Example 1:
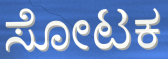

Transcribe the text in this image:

ಸೋಟಕ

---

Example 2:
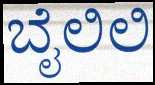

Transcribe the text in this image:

ಬೈಲಿಲಿ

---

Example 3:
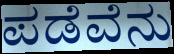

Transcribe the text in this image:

ಪಡೆವೆನು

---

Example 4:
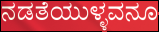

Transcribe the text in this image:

ನಡತೆಯುಳ್ಳವನೂ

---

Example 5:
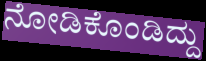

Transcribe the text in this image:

ನೋಡಿಕೊಂಡಿದ್ದು